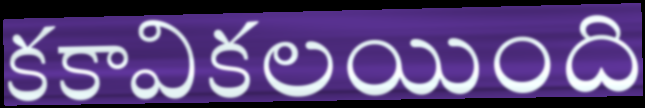
కకావికలయింది